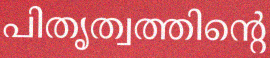
പിതൃത്വത്തിന്റെ